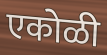
एकोळी